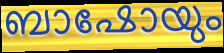
ബാഷോയും